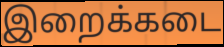
இறைக்கடை